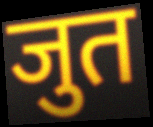
जुत